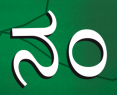
ನಂ